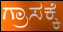
ಗ್ರಾಸಕ್ಕೆ